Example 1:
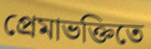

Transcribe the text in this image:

প্রেমাভক্তিতে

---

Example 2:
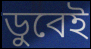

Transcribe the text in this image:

ডুবেই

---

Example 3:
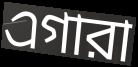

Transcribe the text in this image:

এগারা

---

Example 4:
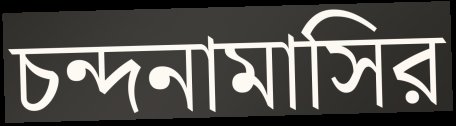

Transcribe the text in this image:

চন্দনামাসির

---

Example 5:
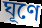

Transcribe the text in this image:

ঘূণে